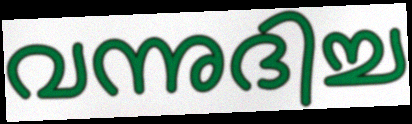
വന്നുദിച്ച